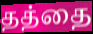
தத்தை